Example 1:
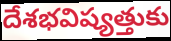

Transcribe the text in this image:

దేశభవిష్యత్తుకు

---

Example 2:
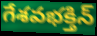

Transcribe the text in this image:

గేశవభక్తిన్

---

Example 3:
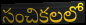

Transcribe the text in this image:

సంచికలలో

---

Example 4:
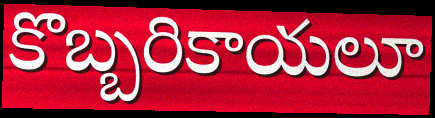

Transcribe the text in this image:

కొబ్బరికాయలూ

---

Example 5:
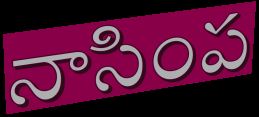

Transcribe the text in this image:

నాసింప